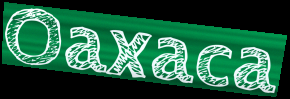
Oaxaca